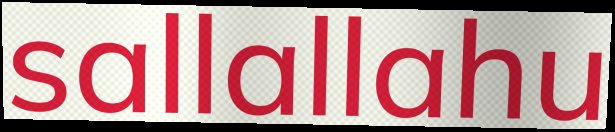
sallallahu